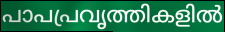
പാപപ്രവൃത്തികളിൽ